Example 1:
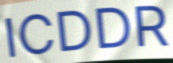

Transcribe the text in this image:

ICDDR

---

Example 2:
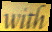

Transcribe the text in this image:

with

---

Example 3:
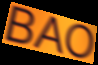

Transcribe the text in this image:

BAO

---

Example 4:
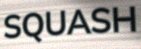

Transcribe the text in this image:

SQUASH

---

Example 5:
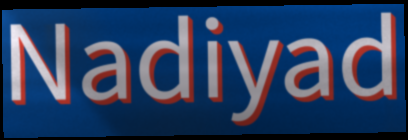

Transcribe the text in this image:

Nadiyad